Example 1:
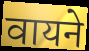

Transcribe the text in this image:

वायने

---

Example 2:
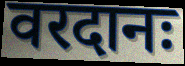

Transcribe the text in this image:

वरदानः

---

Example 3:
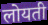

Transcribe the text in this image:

लोयती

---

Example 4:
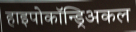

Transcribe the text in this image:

हाइपोकॉन्ड्रिअकल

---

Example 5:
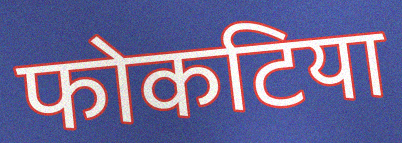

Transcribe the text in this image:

फोकटिया